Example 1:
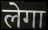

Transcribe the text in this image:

लेगा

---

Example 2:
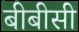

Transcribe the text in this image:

बीबीसी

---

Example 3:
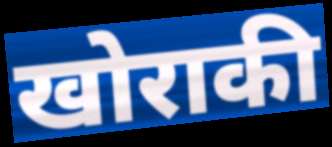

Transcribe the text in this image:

खोराकी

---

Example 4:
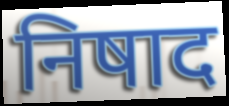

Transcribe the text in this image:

निषाद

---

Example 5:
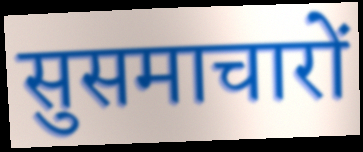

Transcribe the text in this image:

सुसमाचारों